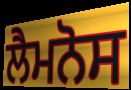
ਲੈਮਨੋਸ